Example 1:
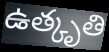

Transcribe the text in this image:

ఉత్కృతి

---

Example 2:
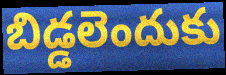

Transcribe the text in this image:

బిడ్డలెందుకు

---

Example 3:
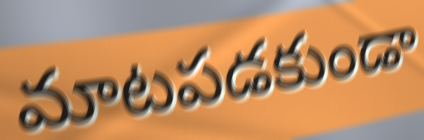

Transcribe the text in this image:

మాటపడకుండా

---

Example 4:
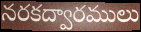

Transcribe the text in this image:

నరకద్వారములు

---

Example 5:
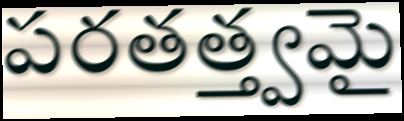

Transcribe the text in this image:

పరతత్త్వమై